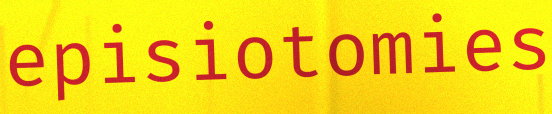
episiotomies